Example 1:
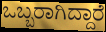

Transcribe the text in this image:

ಒಬ್ಬರಾಗಿದ್ದಾರೆ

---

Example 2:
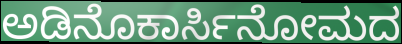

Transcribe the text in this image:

ಅಡಿನೊಕಾರ್ಸಿನೋಮದ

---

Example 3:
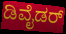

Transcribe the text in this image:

ಡಿವೈಡರ್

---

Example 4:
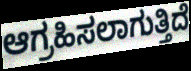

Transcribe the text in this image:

ಆಗ್ರಹಿಸಲಾಗುತ್ತಿದೆ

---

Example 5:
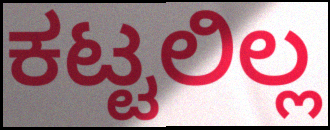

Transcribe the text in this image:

ಕಟ್ಟಲಿಲ್ಲ